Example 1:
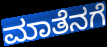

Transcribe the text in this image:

ಮಾತೆನಗೆ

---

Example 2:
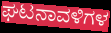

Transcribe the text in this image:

ಘಟನಾವಳಿಗಳ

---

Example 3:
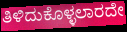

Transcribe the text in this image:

ತಿಳಿದುಕೊಳ್ಳಲಾರದೇ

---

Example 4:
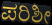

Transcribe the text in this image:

ಪರಿಶೀ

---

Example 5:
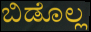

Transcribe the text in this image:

ಬಿಡೊಲ್ಲ